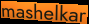
mashelkar